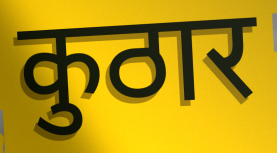
कुठार